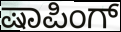
ಷಾಪಿಂಗ್